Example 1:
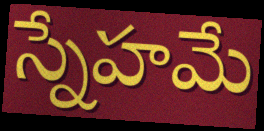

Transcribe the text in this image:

స్నేహమే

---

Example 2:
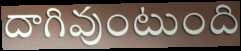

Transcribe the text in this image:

దాగివుంటుంది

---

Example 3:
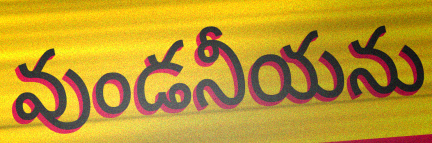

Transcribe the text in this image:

వుండనీయను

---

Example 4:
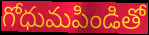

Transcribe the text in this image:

గోధుమపిండితో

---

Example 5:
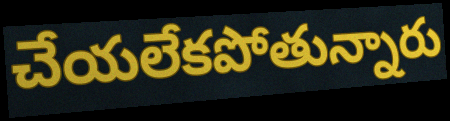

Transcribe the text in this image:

చేయలేకపోతున్నారు